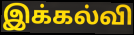
இக்கல்வி